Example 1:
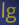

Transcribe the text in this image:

lg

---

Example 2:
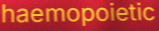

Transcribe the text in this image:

haemopoietic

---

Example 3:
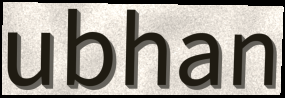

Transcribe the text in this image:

ubhan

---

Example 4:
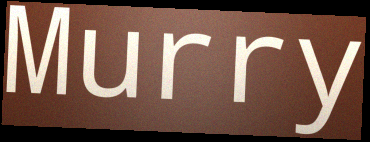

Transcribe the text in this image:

Murry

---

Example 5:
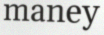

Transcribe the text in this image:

maney